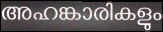
അഹങ്കാരികളും